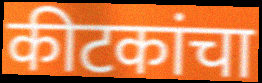
कीटकांचा